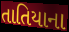
તાતિયાના